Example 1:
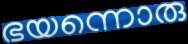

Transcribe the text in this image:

ഭയന്നൊരു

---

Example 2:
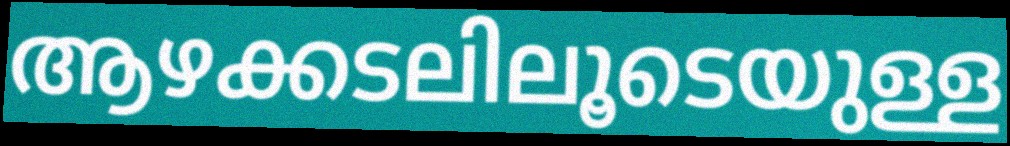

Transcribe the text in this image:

ആഴക്കടലിലൂടെയുള്ള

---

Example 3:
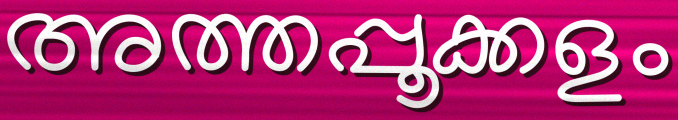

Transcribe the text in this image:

അത്തപ്പൂക്കളം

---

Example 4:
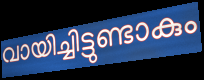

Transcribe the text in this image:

വായിച്ചിട്ടുണ്ടാകും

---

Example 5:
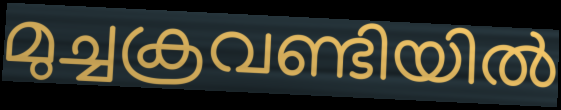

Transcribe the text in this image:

മുച്ചക്രവണ്ടിയിൽ